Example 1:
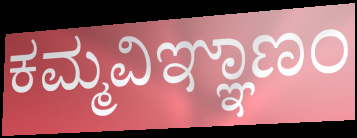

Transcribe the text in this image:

ಕಮ್ಮವಿಞ್ಞಾಣಂ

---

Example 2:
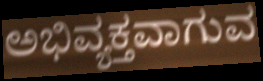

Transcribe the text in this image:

ಅಭಿವ್ಯಕ್ತವಾಗುವ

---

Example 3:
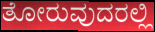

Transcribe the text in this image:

ತೋರುವುದರಲ್ಲಿ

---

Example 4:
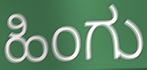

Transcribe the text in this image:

ಹಿಂಗು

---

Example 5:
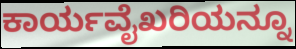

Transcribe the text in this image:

ಕಾರ್ಯವೈಖರಿಯನ್ನೂ